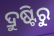
ଦ୍ରୁଷ୍ଟିରୁ